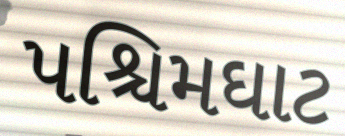
પશ્ચિમઘાટ